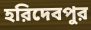
হরিদেবপুর